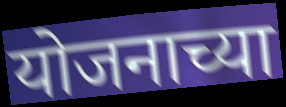
योजनाच्या